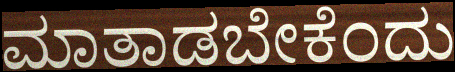
ಮಾತಾಡಬೇಕೆಂದು